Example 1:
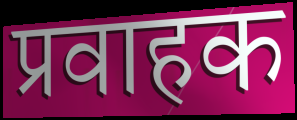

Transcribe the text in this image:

प्रवाहक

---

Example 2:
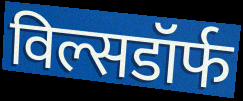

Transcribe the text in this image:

विल्सडॉर्फ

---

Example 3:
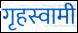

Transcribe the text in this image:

गृहस्वामी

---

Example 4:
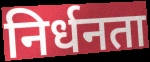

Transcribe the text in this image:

निर्धनता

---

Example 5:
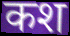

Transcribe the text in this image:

कश